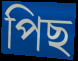
পিছ